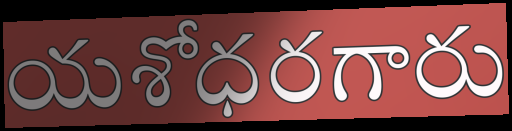
యశోధరగారు